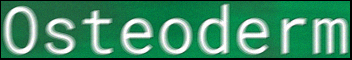
Osteoderm